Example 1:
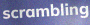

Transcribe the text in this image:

scrambling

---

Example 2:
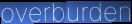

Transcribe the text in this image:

overburden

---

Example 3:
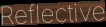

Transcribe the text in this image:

Reflective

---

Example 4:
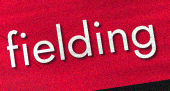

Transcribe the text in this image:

fielding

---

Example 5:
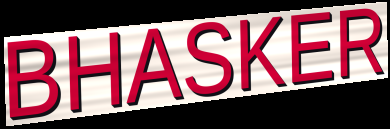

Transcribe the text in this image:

BHASKER